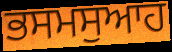
ਭਸਮਸੁਆਹ